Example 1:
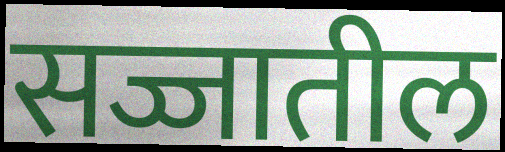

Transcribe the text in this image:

सज्जातील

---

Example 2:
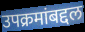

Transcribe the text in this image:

उपक्रमांबद्दल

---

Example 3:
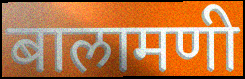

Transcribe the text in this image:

बालामणी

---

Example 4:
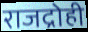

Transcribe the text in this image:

राजद्रोही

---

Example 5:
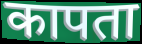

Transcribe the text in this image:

कापता